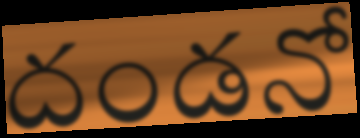
దండనో